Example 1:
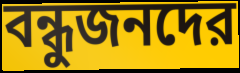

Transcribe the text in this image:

বন্ধুজনদের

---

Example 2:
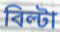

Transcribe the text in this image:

বিল্টা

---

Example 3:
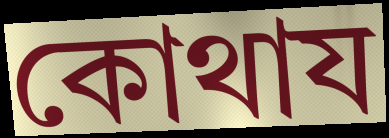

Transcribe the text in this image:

কোথায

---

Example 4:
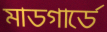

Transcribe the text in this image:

মাডগার্ডে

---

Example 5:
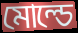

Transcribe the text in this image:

মোল্ডে